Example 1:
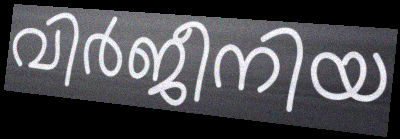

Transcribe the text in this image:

വിർജീനിയ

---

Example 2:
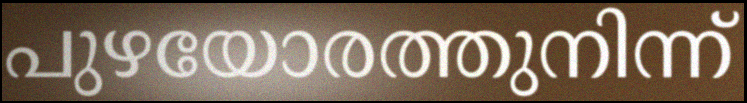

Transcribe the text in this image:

പുഴയോരത്തുനിന്ന്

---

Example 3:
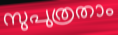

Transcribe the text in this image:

സുപുത്രതാം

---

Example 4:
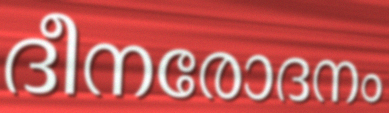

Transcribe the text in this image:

ദീനരോദനം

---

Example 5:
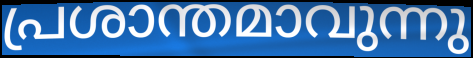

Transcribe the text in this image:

പ്രശാന്തമാവുന്നു